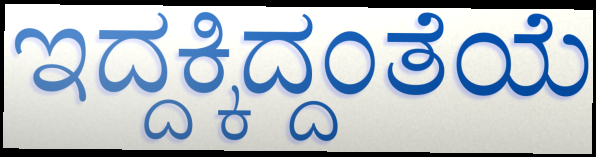
ಇದ್ದಕ್ಕಿದ್ದಂತೆಯೆ